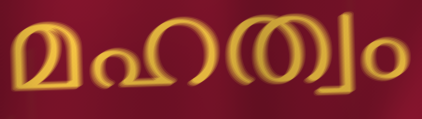
മഹത്വം